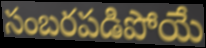
సంబరపడిపోయే